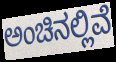
ಅಂಚಿನಲ್ಲಿವೆ